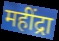
महींद्रा